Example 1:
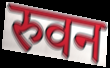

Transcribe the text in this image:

रुवन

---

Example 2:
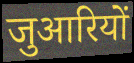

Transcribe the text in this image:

जुआरियों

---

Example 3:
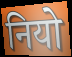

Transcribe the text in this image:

नियो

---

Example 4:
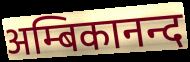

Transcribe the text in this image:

अम्बिकानन्द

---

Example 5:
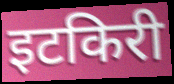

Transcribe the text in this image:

इटकिरी